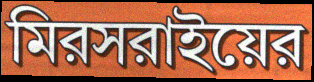
মিরসরাইয়ের